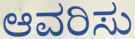
ಆವರಿಸು